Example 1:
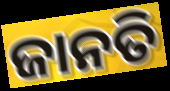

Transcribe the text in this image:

ଜାନତି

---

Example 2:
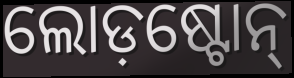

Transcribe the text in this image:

ଲୋଡ଼ଷ୍ଟୋନ୍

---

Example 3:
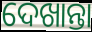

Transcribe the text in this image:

ଦେଖାନ୍ତା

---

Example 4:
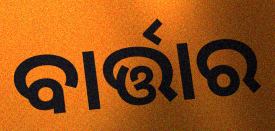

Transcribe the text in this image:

ବାର୍ତ୍ତାର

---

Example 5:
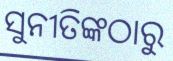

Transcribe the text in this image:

ସୁନୀତିଙ୍କଠାରୁ